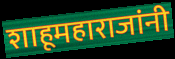
शाहूमहाराजांनी